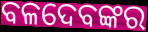
ବଳଦେବଙ୍କର